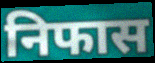
निफास